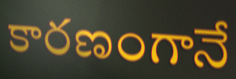
కారణంగానే